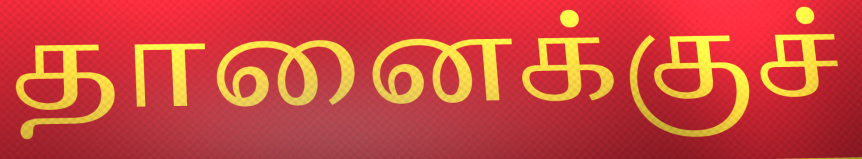
தானைக்குச்